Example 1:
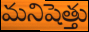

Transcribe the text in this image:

మనిషెత్తు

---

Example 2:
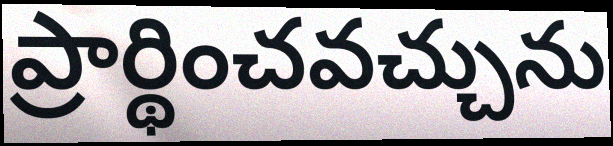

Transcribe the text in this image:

ప్రార్థించవచ్చును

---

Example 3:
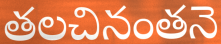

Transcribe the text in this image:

తలచినంతనె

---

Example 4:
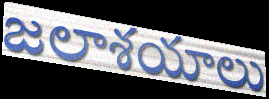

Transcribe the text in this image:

జలాశయాలు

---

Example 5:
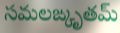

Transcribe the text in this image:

సమలఙ్కృతమ్